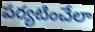
పర్యటించేలా